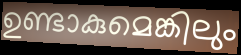
ഉണ്ടാകുമെങ്കിലും